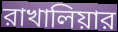
রাখালিয়ার